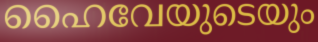
ഹൈവേയുടെയും